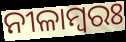
ନୀଳାମ୍ବରଃ